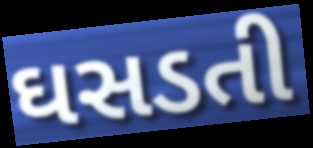
ઘસડતી